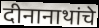
दीनानाथांचे